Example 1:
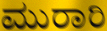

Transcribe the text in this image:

ಮುರಾರಿ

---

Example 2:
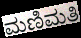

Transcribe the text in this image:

ಮಣಿಮತಿ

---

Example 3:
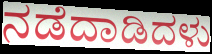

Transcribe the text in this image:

ನಡೆದಾಡಿದಳು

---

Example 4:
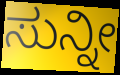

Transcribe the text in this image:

ಸುನ್ನೀ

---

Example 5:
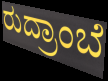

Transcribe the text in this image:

ರುದ್ರಾಂಬೆ